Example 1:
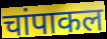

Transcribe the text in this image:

चांपाकल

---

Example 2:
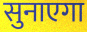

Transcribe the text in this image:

सुनाएगा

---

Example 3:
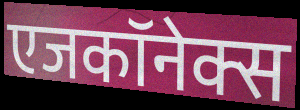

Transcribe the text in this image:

एजकॉनेक्स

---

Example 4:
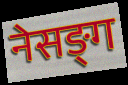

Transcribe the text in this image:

नेसङ्ग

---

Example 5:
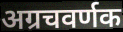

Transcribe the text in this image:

अग्रचवर्णक